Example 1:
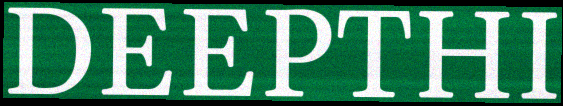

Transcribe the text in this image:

DEEPTHI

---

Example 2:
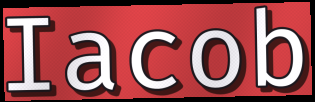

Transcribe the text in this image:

Iacob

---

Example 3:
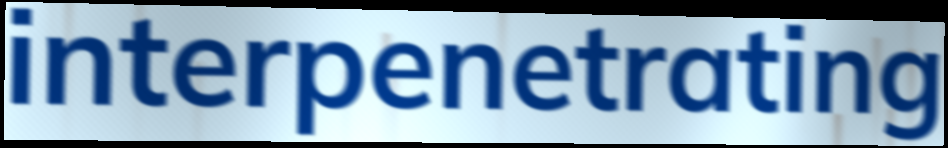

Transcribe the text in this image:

interpenetrating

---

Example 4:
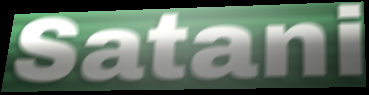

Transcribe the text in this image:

Satani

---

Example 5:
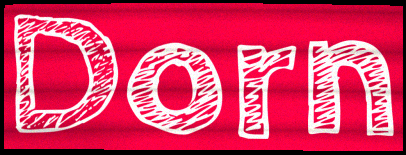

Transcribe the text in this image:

Dorn